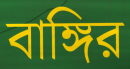
বাঙ্গির